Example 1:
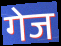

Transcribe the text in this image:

गेज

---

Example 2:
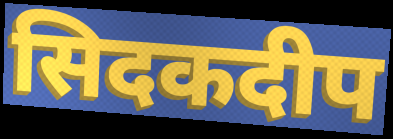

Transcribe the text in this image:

सिदकदीप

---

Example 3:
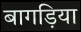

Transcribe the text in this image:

बागड़िया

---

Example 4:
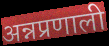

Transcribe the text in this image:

अन्नप्रणाली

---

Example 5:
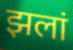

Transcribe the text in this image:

झलां